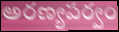
అరణ్యపర్వం